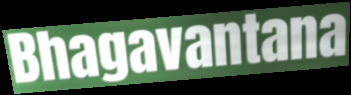
Bhagavantana